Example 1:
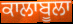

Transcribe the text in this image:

ਕਾਲਾਬੂਲਾ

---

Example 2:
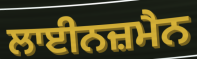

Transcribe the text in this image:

ਲਾਈਨਜ਼ਮੈਨ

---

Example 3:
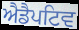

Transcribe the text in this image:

ਐਡੈਪਟਿਵ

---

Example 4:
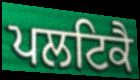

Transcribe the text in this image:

ਪਲਟਿਕੈ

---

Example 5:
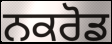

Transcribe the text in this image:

ਨਕਰੋਡ